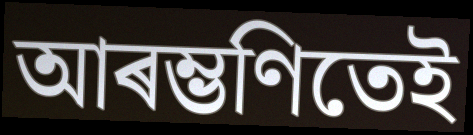
আৰম্ভণিতেই